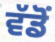
ਵੱਡੋਂ